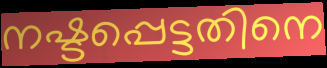
നഷ്ടപ്പെട്ടതിനെ